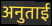
अनुताई